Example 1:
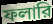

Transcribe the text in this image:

ফলারি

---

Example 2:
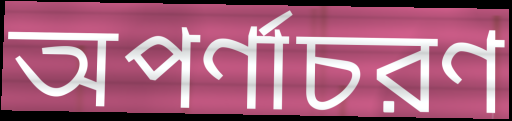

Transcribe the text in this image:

অপর্ণাচরণ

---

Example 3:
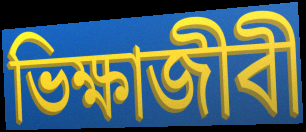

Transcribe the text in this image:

ভিক্ষাজীবী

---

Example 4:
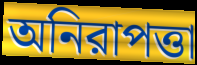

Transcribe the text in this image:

অনিরাপত্তা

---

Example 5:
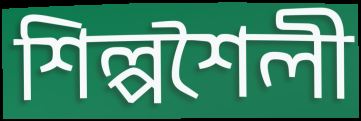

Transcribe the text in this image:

শিল্পশৈলী